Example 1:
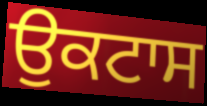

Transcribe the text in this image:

ਉਕਟਾਸ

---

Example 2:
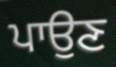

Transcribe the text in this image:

ਪਾਉਣ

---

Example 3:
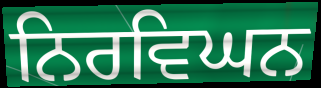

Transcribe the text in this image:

ਨਿਰਵਿਘਨ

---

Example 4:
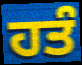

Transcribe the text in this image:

ਹਤੰ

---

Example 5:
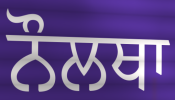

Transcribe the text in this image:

ਨੌਲਥਾ